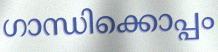
ഗാന്ധിക്കൊപ്പം